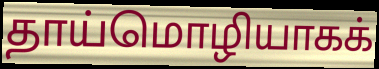
தாய்மொழியாகக்